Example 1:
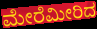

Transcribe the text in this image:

ಮೇರೆಮೀರಿದ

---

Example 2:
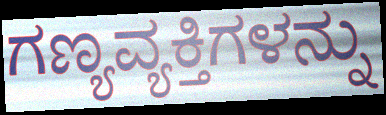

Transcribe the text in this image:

ಗಣ್ಯವ್ಯಕ್ತಿಗಳನ್ನು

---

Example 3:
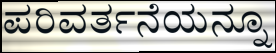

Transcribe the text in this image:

ಪರಿವರ್ತನೆಯನ್ನೂ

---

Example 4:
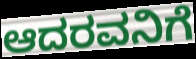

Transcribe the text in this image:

ಆದರವನಿಗೆ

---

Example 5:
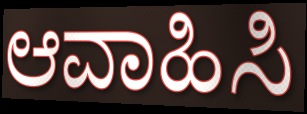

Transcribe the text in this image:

ಆವಾಹಿಸಿ